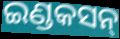
ଇଣ୍ଡକସନ୍